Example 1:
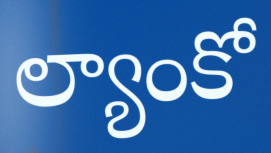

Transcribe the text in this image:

ల్యాంకో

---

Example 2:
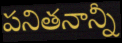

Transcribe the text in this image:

పనితనాన్నీ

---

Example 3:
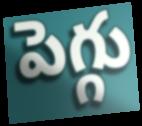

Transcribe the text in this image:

పెగ్గు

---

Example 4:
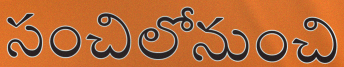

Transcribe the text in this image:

సంచిలోనుంచి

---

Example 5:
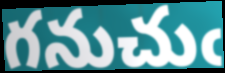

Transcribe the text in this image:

గనుచుఁ